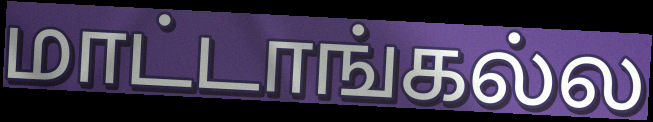
மாட்டாங்கல்ல